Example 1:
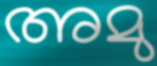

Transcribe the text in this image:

അമു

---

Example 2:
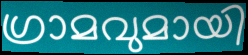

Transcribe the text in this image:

ഗ്രാമവുമായി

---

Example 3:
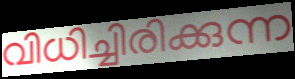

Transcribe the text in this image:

വിധിച്ചിരിക്കുന്ന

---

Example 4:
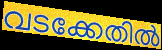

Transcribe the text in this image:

വടക്കേതിൽ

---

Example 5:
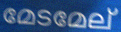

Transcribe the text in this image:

മേടമേല്